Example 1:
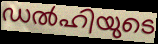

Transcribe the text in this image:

ഡൽഹിയുടെ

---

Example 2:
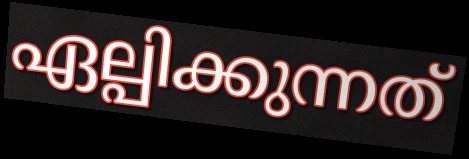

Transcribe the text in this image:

ഏല്പിക്കുന്നത്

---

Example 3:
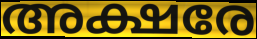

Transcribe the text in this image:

അക്ഷരേ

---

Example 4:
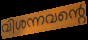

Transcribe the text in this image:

വിശന്നവന്റെ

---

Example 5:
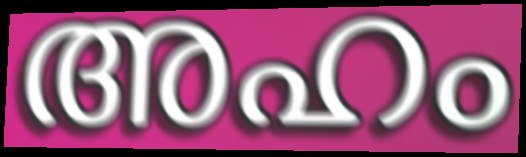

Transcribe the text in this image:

അഹം